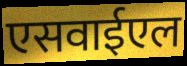
एसवाईएल